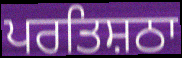
ਪਰਤਿਸ਼ਠਾ